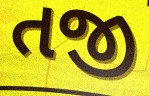
તજી